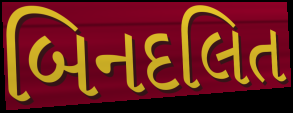
બિનદલિત